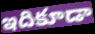
ఇదికూడా